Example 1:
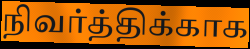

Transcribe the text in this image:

நிவர்த்திக்காக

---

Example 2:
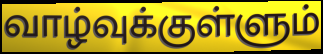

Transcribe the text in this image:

வாழ்வுக்குள்ளும்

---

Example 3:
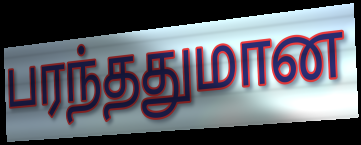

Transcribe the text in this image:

பரந்ததுமான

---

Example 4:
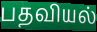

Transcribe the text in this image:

பதவியல்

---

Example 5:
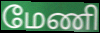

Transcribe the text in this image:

மேணி